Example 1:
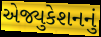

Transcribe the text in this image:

એજ્યુકેશનનું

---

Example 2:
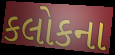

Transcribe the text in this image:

કલોકના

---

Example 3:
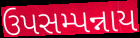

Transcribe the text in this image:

ઉપસમ્પન્નાય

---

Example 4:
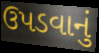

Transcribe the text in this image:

ઉપડવાનું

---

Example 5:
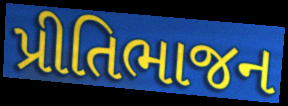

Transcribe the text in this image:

પ્રીતિભાજન